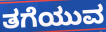
ತಗೆಯುವ